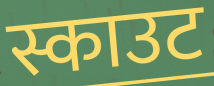
स्काउट